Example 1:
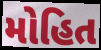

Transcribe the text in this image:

મોહિત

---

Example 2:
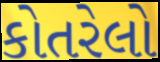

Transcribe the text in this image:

કોતરેલો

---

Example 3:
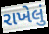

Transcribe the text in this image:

રાખેલું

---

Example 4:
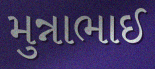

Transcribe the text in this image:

મુન્નાભાઈ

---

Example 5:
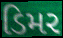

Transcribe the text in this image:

ડિમર